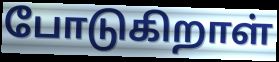
போடுகிறாள்